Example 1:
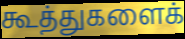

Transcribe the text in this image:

கூத்துகளைக்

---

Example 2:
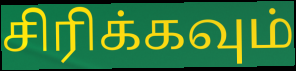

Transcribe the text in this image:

சிரிக்கவும்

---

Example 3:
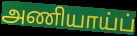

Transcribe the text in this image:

அணியாய்ப்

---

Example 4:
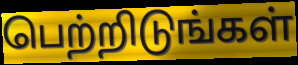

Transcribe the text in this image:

பெற்றிடுங்கள்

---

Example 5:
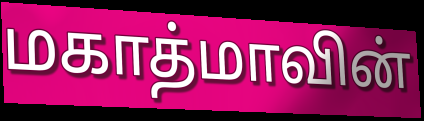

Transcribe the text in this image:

மகாத்மாவின்